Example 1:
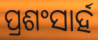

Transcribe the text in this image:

ପ୍ରଶଂସାର୍ହ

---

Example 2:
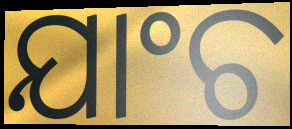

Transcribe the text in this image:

ଯାଂଚ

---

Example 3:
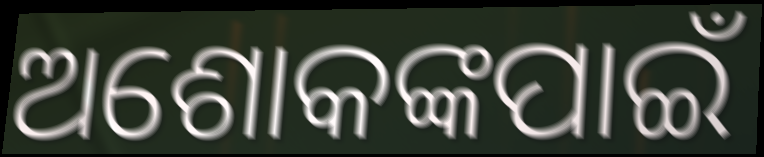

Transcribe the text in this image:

ଅଶୋକଙ୍କପାଇଁ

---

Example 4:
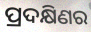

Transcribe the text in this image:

ପ୍ରଦକ୍ଷିଣର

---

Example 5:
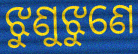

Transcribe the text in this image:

ଝୁଣୁଝୁଣେ